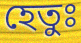
হেতুঃ